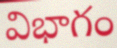
విభాగం